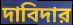
দাবিদার